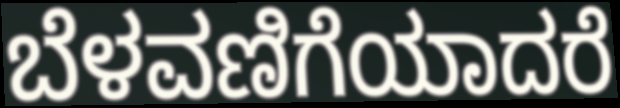
ಬೆಳವಣಿಗೆಯಾದರೆ